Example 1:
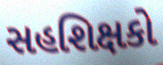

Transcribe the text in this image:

સહશિક્ષકો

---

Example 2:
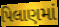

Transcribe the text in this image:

પિલાણમાં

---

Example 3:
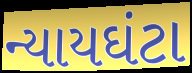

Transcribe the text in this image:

ન્યાયઘંટા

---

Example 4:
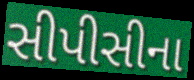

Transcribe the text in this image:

સીપીસીના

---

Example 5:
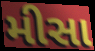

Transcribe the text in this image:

મીસા